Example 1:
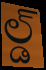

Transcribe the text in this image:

ల్డ్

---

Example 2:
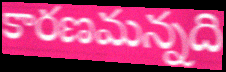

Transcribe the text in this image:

కారణమన్నది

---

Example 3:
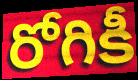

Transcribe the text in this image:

రోగికీ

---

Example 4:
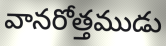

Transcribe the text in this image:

వానరోత్తముడు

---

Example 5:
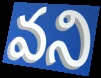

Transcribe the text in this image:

వని